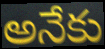
అనేకు